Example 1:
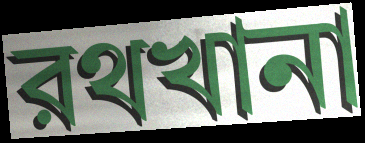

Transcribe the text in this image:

রথখানা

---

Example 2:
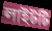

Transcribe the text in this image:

লাইটটি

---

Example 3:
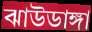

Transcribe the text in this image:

ঝাউডাঙ্গা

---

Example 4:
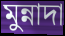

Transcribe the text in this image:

মুন্নাদা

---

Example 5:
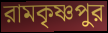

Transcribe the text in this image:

রামকৃষ্ণপুর